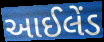
આઈલેંડ